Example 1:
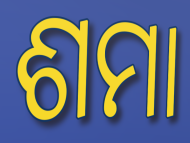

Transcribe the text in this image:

ଶମା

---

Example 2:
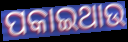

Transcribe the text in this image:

ପକାଇଥାଉ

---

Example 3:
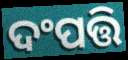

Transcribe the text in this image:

ଦଂପତ୍ତି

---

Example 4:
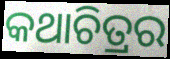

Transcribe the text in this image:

କଥାଚିତ୍ରର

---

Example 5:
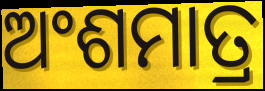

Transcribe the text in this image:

ଅଂଶମାତ୍ର